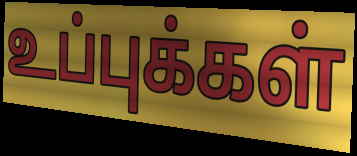
உப்புக்கள்